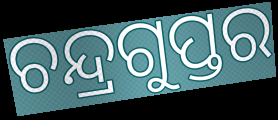
ଚନ୍ଦ୍ରଗୁପ୍ତର